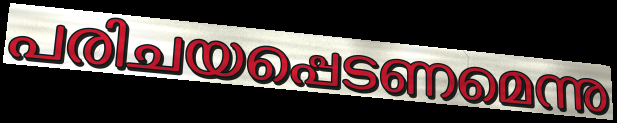
പരിചയപ്പെടണമെന്നു